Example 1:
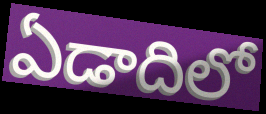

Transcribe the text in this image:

ఏడాదిలో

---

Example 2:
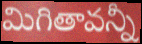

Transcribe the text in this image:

మిగితావన్నీ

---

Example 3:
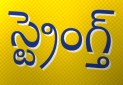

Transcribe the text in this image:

స్ట్రెంగ్త్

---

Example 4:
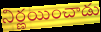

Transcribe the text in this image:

నిర్ణయించాడు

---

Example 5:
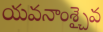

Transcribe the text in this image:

యవనాంశ్చైవ